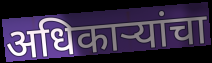
अधिकाऱ्यांचा